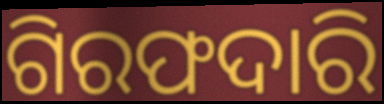
ଗିରଫଦାରି